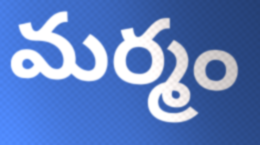
మర్మం